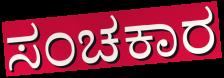
ಸಂಚಕಾರ